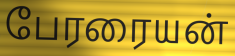
பேரரையன்